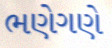
ભણેગણે